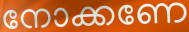
നോക്കണേ